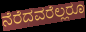
ನೆರೆದವರೆಲ್ಲರೂ